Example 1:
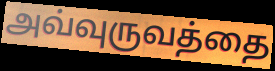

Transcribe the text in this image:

அவ்வுருவத்தை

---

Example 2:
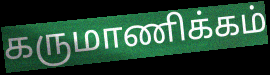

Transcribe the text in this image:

கருமாணிக்கம்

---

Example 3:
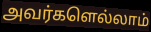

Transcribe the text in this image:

அவர்களெல்லாம்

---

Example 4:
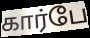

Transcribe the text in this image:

கார்பே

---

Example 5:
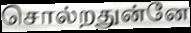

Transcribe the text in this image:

சொல்றதுன்னே